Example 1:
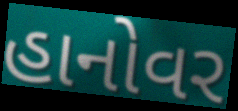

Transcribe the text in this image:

હાનોવર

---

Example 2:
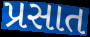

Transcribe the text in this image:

પ્રસાત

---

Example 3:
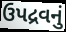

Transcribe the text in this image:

ઉપદ્રવનું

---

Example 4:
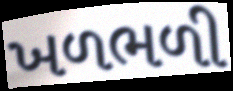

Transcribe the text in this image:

ખળભળી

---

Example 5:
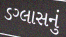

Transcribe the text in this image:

ડગ્લાસનું